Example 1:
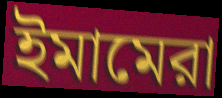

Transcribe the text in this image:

ইমামেরা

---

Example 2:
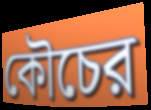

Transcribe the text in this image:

কৌচের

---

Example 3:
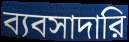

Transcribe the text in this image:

ব্যবসাদারি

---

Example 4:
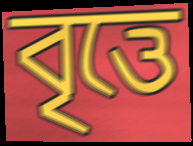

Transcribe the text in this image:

বৃত্তে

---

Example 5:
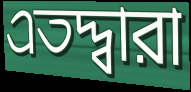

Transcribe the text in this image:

এতদ্দ্বারা